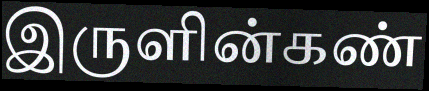
இருளின்கண்